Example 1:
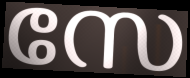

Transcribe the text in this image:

സേ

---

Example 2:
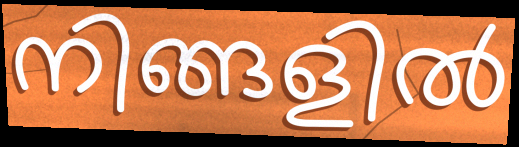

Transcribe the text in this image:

നിങ്ങളിൽ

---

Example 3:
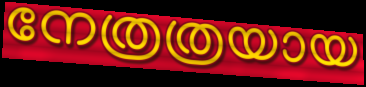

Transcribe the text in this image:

നേത്രത്രയായ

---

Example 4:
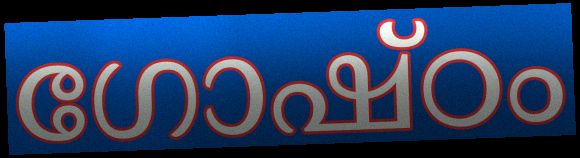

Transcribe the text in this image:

ഗോഷ്ഠം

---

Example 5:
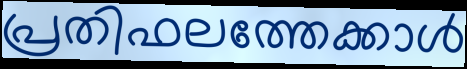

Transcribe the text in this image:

പ്രതിഫലത്തേക്കാൾ